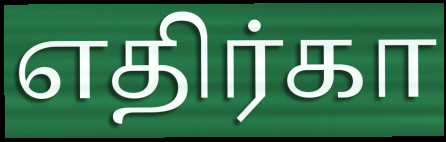
எதிர்கா